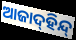
ଆଜାଦ୍‍ହିନ୍ଦ୍